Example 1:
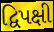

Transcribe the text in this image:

દ્વિપક્ષી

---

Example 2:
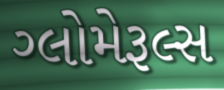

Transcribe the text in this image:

ગ્લોમેરૂલ્સ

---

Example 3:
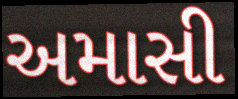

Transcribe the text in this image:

અમાસી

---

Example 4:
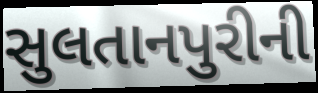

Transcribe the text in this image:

સુલતાનપુરીની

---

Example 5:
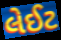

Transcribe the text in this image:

લેઈટ